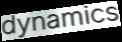
dynamics